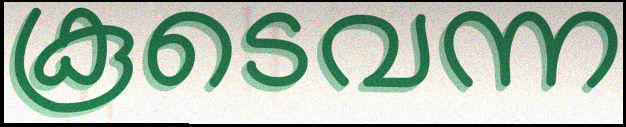
കൂടെവന്ന